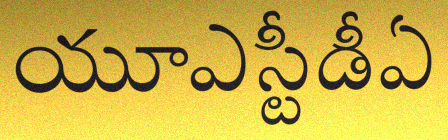
యూఎస్టీడీఏ